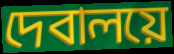
দেবালয়ে